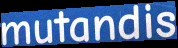
mutandis